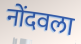
नोंदवला